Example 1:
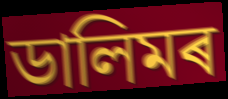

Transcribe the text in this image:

ডালিমৰ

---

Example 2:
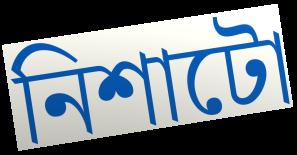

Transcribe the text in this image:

নিশাটো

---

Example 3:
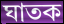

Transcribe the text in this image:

ঘাতক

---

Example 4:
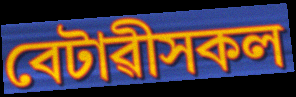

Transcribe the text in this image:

বেটাৱীসকল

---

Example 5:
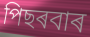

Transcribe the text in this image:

পিছৰবাৰ